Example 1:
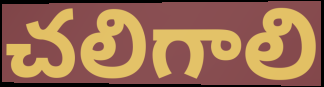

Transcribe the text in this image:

చలిగాలి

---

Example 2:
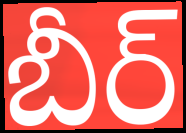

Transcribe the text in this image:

బీర్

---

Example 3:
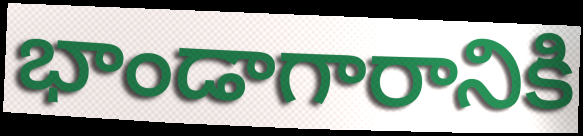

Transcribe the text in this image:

భాండాగారానికి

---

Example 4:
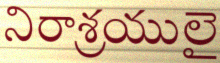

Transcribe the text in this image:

నిరాశ్రయులై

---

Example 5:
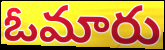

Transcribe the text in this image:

ఓమారు